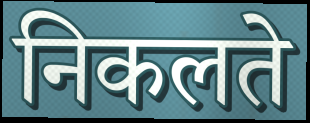
निकलते